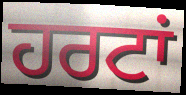
ਹਰਟਾਂ